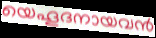
യെഹൂദനായവൻ